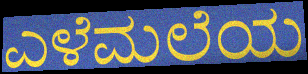
ಎಳೆಮಲೆಯ